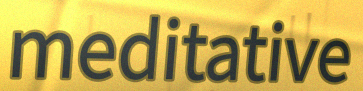
meditative